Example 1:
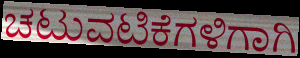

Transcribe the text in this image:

ಚಟುವಟಿಕೆಗಳಿಗಾಗಿ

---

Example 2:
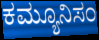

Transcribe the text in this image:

ಕಮ್ಯೂನಿಸಂ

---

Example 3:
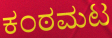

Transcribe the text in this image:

ಕಂಠಮಟ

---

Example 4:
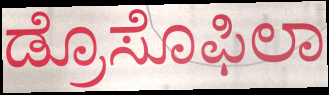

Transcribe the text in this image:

ಡ್ರೊಸೊಫಿಲಾ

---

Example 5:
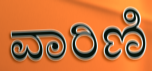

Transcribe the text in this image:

ವಾರಿಣಿ